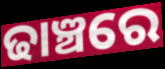
ଢାଞ୍ଚରେ